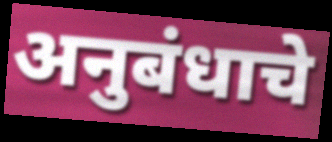
अनुबंधाचे